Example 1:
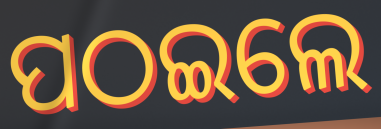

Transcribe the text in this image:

ପଠଇଲେ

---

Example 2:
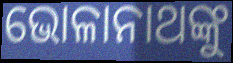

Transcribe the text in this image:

ଭୋଳାନାଥଙ୍କୁ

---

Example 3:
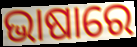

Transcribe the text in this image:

ଭାଷାରେ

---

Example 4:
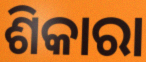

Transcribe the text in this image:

ଶିକାରା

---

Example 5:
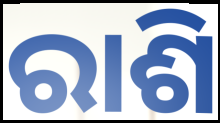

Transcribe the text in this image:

ରାଶି